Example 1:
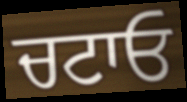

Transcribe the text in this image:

ਚਟਾਓ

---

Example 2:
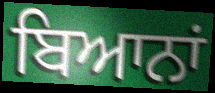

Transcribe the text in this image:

ਬਿਆਨਾਂ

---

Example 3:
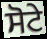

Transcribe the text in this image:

ਸੋਟੇ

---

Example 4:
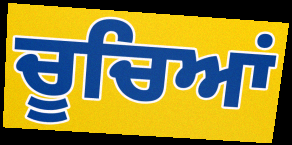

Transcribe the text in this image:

ਚੂਚਿਆਂ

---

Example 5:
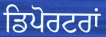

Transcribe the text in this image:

ਡਿਪੋਰਟਰਾਂ